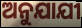
ଅନୁଯାଯୀ